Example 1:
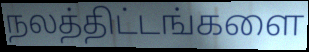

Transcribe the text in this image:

நலத்திட்டங்களை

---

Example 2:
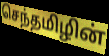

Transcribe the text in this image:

செந்தமிழின்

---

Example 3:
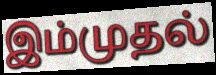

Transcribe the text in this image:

இம்முதல்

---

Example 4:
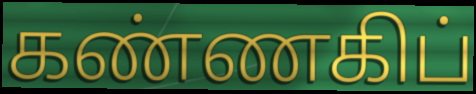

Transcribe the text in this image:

கண்ணகிப்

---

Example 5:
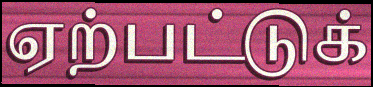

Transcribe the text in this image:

ஏற்பட்டுக்